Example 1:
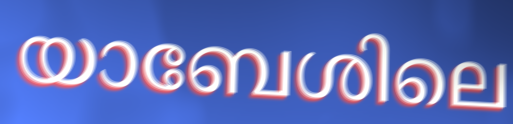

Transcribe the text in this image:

യാബേശിലെ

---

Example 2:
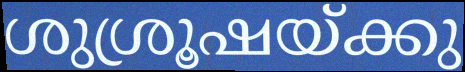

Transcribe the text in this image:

ശുശ്രൂഷയ്ക്കു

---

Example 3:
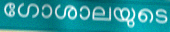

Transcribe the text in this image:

ഗോശാലയുടെ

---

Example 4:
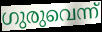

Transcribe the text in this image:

ഗുരുവെന്ന്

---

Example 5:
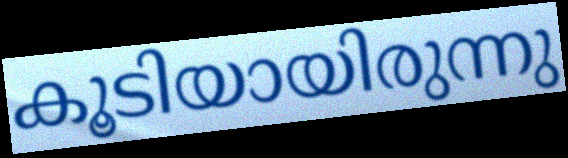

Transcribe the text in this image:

കൂടിയായിരുന്നു